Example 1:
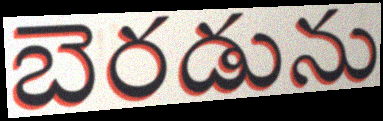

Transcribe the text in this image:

బెరడును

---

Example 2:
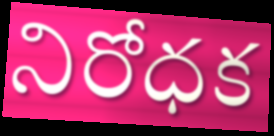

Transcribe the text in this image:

నిరోధక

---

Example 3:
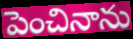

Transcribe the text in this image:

పెంచినాను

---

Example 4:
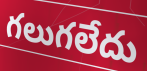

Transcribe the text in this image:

గలుగలేదు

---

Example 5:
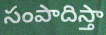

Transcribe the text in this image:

సంపాదిస్తా